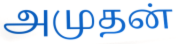
அமுதன்